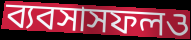
ব্যবসাসফলও